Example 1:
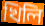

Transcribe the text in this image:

খিলি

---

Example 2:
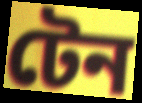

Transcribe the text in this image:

টেন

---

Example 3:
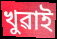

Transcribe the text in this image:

খুৱাই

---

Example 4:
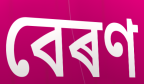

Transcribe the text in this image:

বেৰণ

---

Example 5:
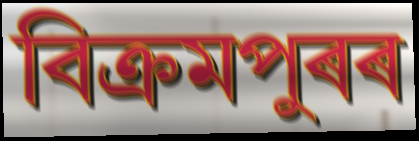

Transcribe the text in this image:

বিক্ৰমপুৰৰ